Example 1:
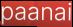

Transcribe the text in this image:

paanai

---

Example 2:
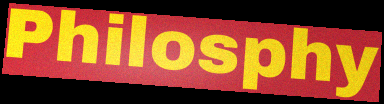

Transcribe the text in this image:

Philosphy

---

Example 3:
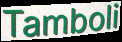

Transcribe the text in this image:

Tamboli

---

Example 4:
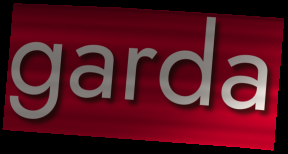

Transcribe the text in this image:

garda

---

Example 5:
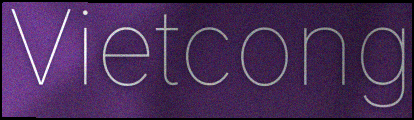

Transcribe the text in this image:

Vietcong